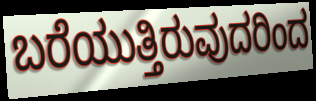
ಬರೆಯುತ್ತಿರುವುದರಿಂದ